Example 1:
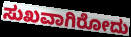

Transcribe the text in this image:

ಸುಖವಾಗಿರೋದು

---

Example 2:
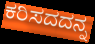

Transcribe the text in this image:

ಕರಿಸದದನ್ನ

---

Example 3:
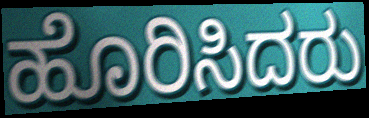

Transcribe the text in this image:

ಹೊರಿಸಿದರು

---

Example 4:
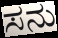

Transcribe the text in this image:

ಸನು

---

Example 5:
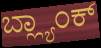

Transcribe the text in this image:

ಬ್ಲ್ಯಾಂಕ್